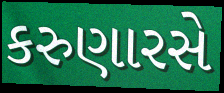
કરુણારસે